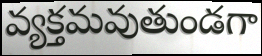
వ్యక్తమవుతుండగా